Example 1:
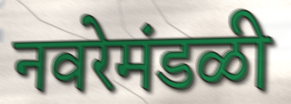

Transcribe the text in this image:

नवरेमंडळी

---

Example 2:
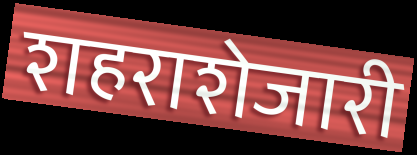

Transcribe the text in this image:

शहराशेजारी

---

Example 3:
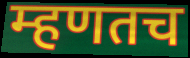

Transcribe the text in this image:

म्हणतच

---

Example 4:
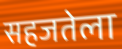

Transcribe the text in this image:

सहजतेला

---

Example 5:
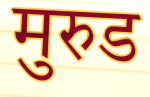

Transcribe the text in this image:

मुरुड